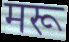
मरू